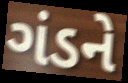
ગંડને